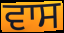
ਵਾਸ